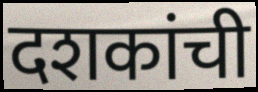
दशकांची